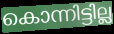
കൊന്നിട്ടില്ല